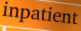
inpatient